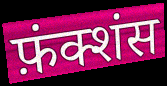
फ़ंक्शंस